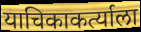
याचिकाकर्त्याला